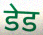
डेड